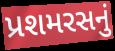
પ્રશમરસનું